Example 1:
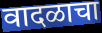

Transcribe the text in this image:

वादळाचा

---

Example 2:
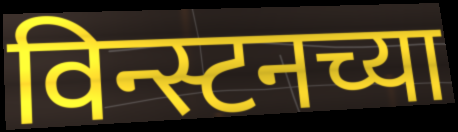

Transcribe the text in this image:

विन्स्टनच्या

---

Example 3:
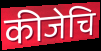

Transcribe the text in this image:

कीजेचि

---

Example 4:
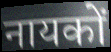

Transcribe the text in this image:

नायकों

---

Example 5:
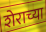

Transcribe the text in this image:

शेराच्या